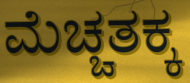
ಮೆಚ್ಚತಕ್ಕ